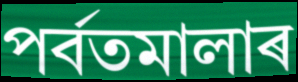
পৰ্বতমালাৰ